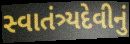
સ્વાતંત્ર્યદેવીનું